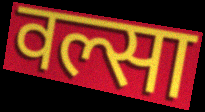
वल्सा